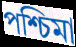
পশ্চিমা